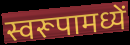
स्वरूपामध्यें